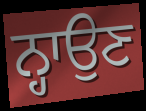
ਨ੍ਹਾਉਣ